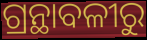
ଗ୍ରନ୍ଥାବଳୀରୁ